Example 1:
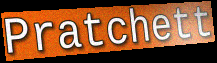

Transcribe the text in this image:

Pratchett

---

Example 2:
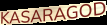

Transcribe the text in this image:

KASARAGOD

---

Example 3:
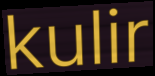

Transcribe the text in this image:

kulir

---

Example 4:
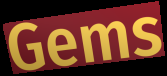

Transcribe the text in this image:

Gems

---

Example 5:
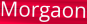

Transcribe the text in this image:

Morgaon